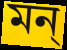
মন্